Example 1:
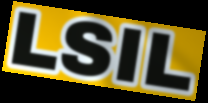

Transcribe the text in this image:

LSIL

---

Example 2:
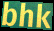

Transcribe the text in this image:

bhk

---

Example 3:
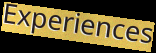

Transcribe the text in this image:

Experiences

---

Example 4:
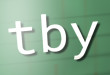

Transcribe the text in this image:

tby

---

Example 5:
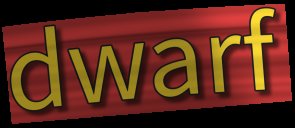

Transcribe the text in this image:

dwarf